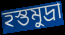
হস্তমুদ্রা